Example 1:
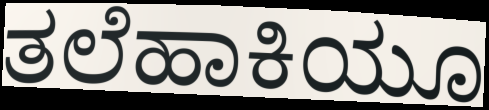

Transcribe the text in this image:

ತಲೆಹಾಕಿಯೂ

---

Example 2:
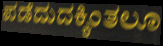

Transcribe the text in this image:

ಪಡೆದುದಕ್ಕಿಂತಲೂ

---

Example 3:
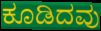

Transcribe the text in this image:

ಕೂಡಿದವು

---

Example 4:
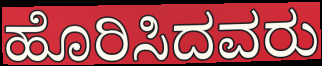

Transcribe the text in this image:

ಹೊರಿಸಿದವರು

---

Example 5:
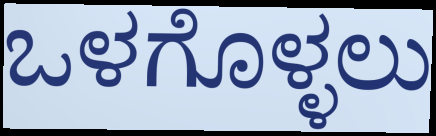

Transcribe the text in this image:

ಒಳಗೊಳ್ಳಲು